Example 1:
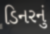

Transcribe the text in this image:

ડિનરનું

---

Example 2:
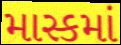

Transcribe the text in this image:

માસ્કમાં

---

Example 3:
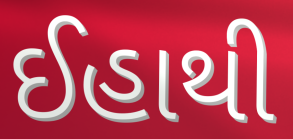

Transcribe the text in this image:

ઈહાથી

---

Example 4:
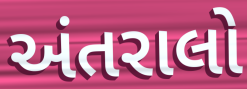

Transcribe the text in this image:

અંતરાલો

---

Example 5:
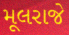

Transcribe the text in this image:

મૂલરાજે